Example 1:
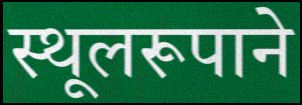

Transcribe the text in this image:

स्थूलरूपाने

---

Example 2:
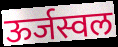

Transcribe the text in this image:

ऊर्जस्वल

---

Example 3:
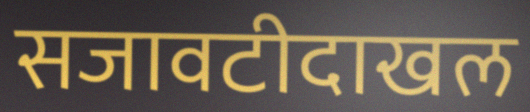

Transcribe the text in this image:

सजावटीदाखल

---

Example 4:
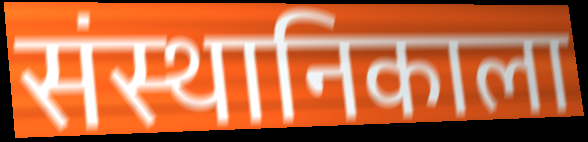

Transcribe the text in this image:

संस्थानिकाला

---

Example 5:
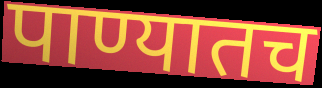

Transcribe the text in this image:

पाण्यातच